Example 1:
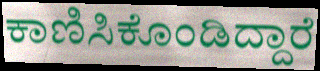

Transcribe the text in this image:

ಕಾಣಿಸಿಕೊಂಡಿದ್ದಾರೆ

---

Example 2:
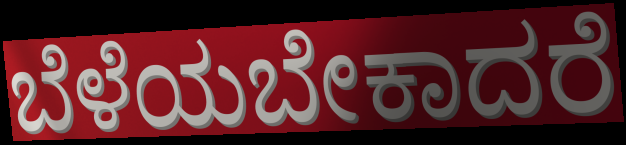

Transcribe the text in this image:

ಬೆಳೆಯಬೇಕಾದರೆ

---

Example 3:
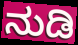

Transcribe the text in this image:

ನುಡಿ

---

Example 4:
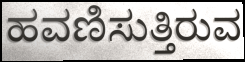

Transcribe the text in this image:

ಹವಣಿಸುತ್ತಿರುವ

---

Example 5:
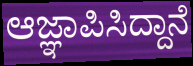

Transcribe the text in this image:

ಆಜ್ಞಾಪಿಸಿದ್ದಾನೆ